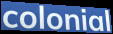
colonial